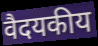
वैदयकीय